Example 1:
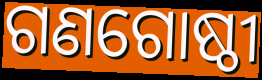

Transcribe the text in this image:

ଗଣଗୋଷ୍ଠୀ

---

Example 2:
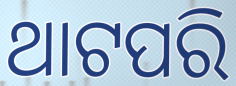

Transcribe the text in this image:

ଥାଟପରି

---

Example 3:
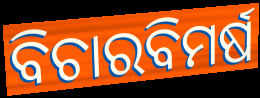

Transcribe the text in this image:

ବିଚାରବିମର୍ଷ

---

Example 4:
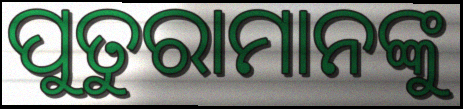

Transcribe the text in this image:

ପୁତୁରାମାନଙ୍କୁ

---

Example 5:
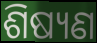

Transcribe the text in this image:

ଶିଷ୍ୟଣ